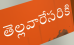
తెల్లవారేసరికి